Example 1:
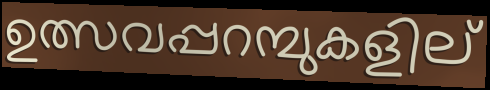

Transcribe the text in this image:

ഉത്സവപ്പറമ്പുകളില്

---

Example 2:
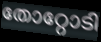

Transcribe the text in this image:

തോറ്റോടി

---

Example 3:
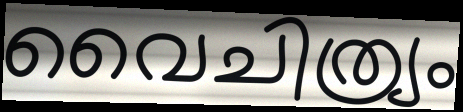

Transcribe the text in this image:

വൈചിത്ര്യം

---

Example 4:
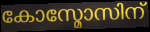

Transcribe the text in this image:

കോസ്മോസിന്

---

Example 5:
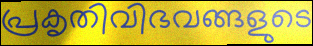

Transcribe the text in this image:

പ്രകൃതിവിഭവങ്ങളുടെ